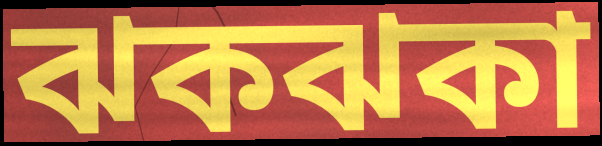
ঝকঝকা